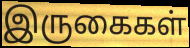
இருகைகள்